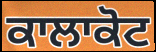
ਕਾਲਾਕੋਟ